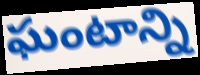
ఘంటాన్ని